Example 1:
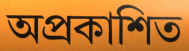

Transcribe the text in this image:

অপ্রকাশিত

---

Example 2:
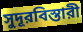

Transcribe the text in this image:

সুদূরবিস্তারী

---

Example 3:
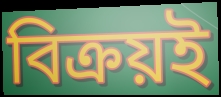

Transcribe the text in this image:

বিক্রয়ই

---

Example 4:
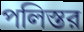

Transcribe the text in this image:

পলিস্তর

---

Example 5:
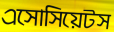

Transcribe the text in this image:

এসোসিয়েটস